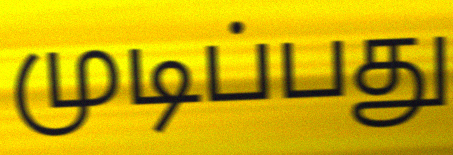
முடிப்பது